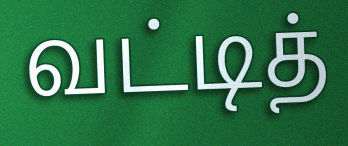
வட்டித்